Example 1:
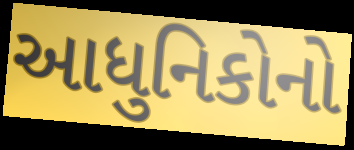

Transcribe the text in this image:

આધુનિકોનો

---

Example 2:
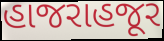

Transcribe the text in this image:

હાજરાહજૂર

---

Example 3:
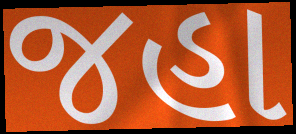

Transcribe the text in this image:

જહા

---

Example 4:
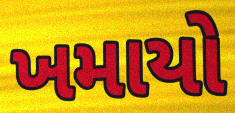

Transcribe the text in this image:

ખમાયો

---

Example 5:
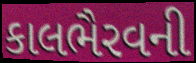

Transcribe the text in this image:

કાલભૈરવની